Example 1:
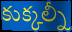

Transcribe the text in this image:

కుక్కల్నీ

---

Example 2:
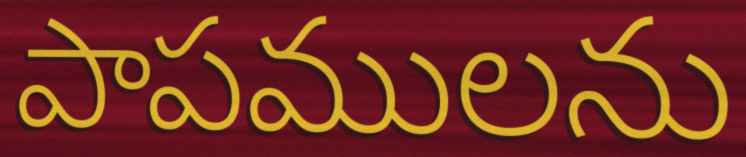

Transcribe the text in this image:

పాపములను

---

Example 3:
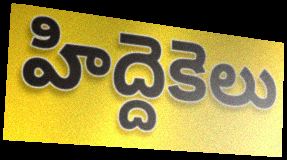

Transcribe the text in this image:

హిద్దెకెలు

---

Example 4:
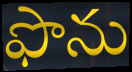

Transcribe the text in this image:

ఫొను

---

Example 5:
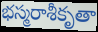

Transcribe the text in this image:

భస్మరాశీకృతా